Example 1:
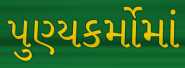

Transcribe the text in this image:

પુણ્યકર્મોમાં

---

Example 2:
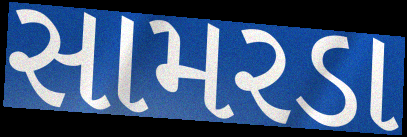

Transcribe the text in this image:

સામરડા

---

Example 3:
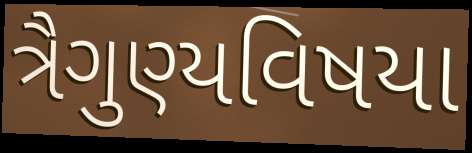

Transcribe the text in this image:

ત્રૈગુણ્યવિષયા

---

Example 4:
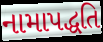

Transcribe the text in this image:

નામાપદ્ધતિ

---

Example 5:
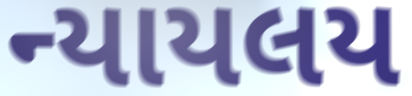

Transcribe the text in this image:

ન્યાયલય